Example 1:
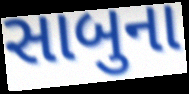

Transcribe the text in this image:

સાબુના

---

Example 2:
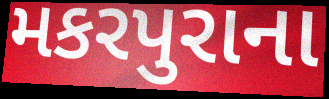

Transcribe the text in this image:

મકરપુરાના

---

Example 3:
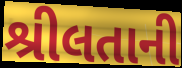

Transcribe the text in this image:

શ્રીલતાની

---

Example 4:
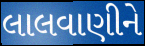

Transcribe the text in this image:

લાલવાણીને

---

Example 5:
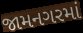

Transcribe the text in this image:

જામનગરમાં